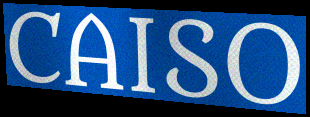
CAISO